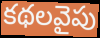
కథలవైపు